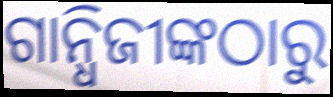
ଗାନ୍ଧିଜୀଙ୍କଠାରୁ